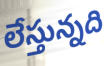
లేస్తున్నది